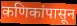
कणिकांपासून